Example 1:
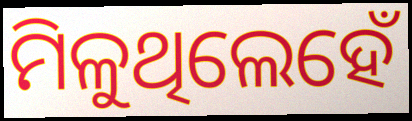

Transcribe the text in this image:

ମିଳୁଥିଲେହେଁ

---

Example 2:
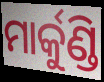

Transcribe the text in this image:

ମାର୍କୁଣ୍ଡି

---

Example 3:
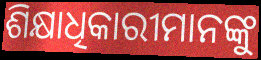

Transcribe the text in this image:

ଶିକ୍ଷାଧିକାରୀମାନଙ୍କୁ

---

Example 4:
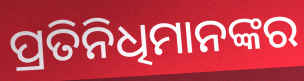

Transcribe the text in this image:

ପ୍ରତିନିଧିମାନଙ୍କର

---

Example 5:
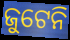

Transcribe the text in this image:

ଜୁଟେନି